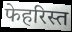
फेहरिस्‍त